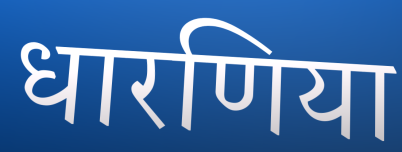
धारणिया